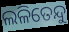
ଲଳିତେନ୍ଦୁ